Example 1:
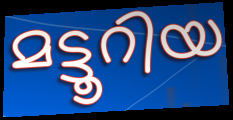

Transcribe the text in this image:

മട്ടൂറിയ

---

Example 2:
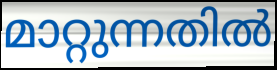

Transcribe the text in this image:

മാറ്റുന്നതിൽ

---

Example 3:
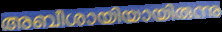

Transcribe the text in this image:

അബീശായിയായിരുന്നു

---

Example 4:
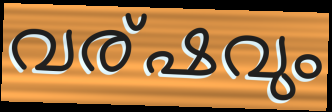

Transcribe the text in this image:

വര്ഷവും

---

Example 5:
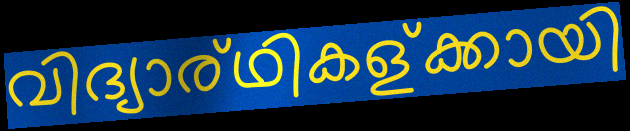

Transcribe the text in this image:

വിദ്യാര്ഥികള്ക്കായി